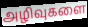
அழிவுகளை